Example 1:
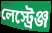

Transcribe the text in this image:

লেস্ট্রেঞ্জ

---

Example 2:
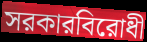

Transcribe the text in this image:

সরকারবিরোধী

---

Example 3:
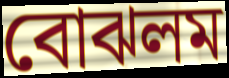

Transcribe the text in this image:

বোঝলম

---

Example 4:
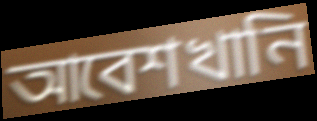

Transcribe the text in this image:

আবেশখানি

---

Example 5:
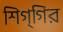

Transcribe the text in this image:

শিগ্‌গির